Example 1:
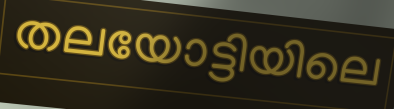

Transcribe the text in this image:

തലയോട്ടിയിലെ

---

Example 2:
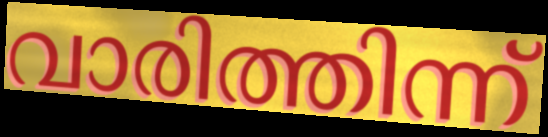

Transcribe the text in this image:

വാരിത്തിന്ന്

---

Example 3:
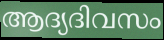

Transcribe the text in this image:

ആദ്യദിവസം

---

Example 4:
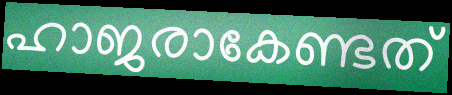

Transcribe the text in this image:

ഹാജരാകേണ്ടത്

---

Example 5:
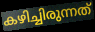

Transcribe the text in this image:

കഴിച്ചിരുന്നത്